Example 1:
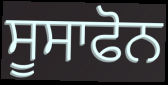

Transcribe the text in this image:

ਸੂਸਾਫੋਨ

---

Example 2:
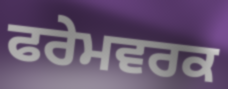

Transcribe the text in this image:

ਫਰੇਮਵਰਕ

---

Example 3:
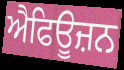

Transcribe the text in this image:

ਐਫਿਊਜ਼ਨ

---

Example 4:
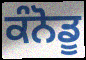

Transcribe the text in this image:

ਕੰਨੋਡੂ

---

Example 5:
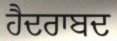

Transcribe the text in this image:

ਹੈਦਰਾਬਦ